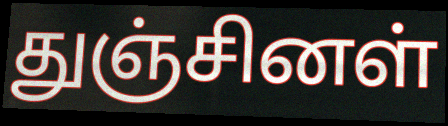
துஞ்சினள்